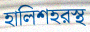
হালিশহরস্থ